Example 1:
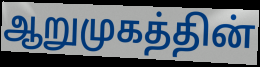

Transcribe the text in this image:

ஆறுமுகத்தின்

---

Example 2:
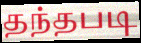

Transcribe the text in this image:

தந்தபடி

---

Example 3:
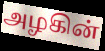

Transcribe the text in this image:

அழகின்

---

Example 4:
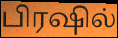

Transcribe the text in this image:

பிரஷில்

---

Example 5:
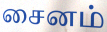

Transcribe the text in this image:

சைனம்